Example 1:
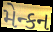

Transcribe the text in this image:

મેન્કન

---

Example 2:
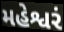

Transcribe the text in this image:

મહેશ્વરં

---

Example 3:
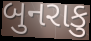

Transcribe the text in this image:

બુનરાકુ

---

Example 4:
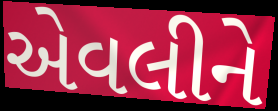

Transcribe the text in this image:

એવલીને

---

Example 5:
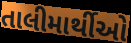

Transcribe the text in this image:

તાલીમાર્થીઓ